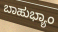
ಬಾಹುಭ್ಯಾಂ